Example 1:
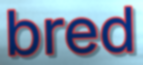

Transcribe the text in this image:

bred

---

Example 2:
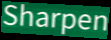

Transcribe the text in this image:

Sharpen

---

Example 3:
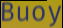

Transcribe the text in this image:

Buoy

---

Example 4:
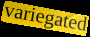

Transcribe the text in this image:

variegated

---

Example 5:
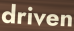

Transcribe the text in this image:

driven